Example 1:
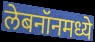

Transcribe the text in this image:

लेबनॉनमध्ये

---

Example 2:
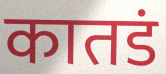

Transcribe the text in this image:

कातडं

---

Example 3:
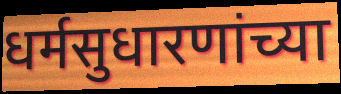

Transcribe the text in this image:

धर्मसुधारणांच्या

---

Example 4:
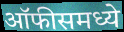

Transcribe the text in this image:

ऑफीसमध्ये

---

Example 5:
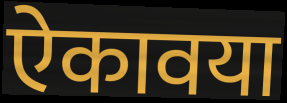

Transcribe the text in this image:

ऐकावया